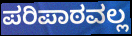
ಪರಿಪಾಠವಲ್ಲ